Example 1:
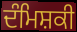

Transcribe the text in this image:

ਦੰਮਿਸ਼ਕੀ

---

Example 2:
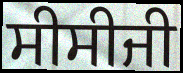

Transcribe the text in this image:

ਸੀਸੀਜੀ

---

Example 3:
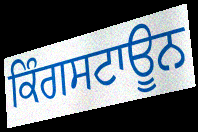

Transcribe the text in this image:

ਕਿੰਗਸਟਾਊਨ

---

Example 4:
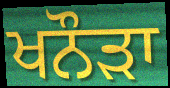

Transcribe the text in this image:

ਖਨੌੜਾ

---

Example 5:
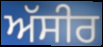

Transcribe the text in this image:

ਅੱਸੀਰ